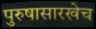
पुरुषासारखेच